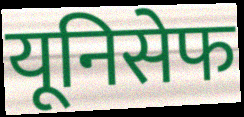
यूनिसेफ